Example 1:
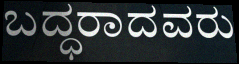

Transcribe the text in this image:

ಬದ್ಧರಾದವರು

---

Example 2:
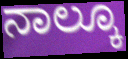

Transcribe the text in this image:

ನಾಲ್ಕೂ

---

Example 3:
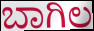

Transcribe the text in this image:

ಬಾಗಿಲ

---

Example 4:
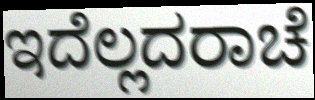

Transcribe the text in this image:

ಇದೆಲ್ಲದರಾಚೆ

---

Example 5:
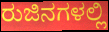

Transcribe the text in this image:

ರುಜಿನಗಳಲ್ಲಿ